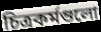
চিত্রকর্মগুলো